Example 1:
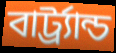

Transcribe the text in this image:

বার্ট্র্যান্ড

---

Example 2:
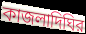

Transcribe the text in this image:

কাজলাদিঘির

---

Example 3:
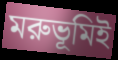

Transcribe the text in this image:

মরুভূমিই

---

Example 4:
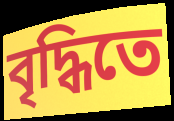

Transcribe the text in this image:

বৃদ্ধিতে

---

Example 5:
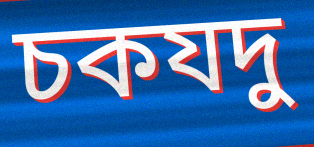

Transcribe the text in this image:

চকযদু